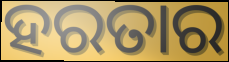
ହରତାର